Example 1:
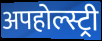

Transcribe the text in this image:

अपहोल्स्ट्री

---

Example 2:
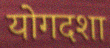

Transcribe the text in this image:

योगदशा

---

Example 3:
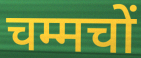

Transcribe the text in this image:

चम्मचों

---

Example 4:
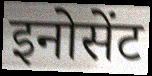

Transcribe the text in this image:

इनोसेंट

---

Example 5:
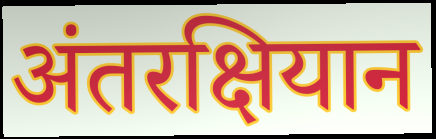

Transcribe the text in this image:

अंतरक्षियान